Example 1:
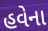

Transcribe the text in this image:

હવેના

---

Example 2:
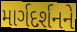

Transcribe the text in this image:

માર્ગદર્શનને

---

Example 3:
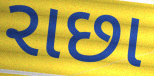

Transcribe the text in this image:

રાછા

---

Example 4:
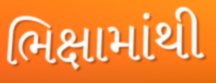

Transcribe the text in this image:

ભિક્ષામાંથી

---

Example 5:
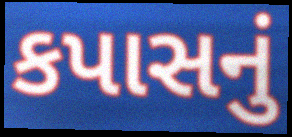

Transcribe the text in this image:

કપાસનું